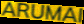
ARUMAI